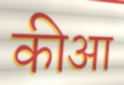
कीआ